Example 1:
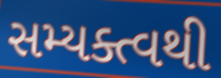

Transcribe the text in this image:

સમ્યક્ત્વથી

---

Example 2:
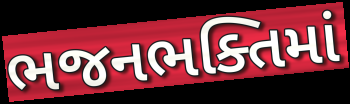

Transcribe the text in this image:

ભજનભક્તિમાં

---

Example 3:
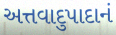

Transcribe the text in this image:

અત્તવાદુપાદાનં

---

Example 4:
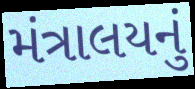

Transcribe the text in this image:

મંત્રાલયનું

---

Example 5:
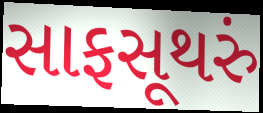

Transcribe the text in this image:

સાફસૂથરું